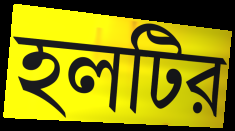
হলটির